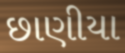
છાણીયા